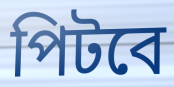
পিটবে